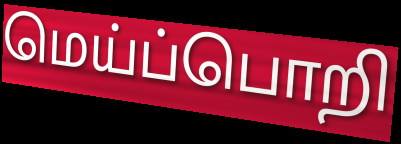
மெய்ப்பொறி